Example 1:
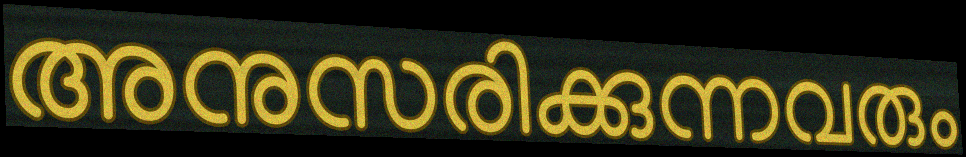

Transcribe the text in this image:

അനുസരിക്കുന്നവരും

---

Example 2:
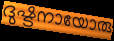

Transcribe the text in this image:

ദുഷ്ടനായോരു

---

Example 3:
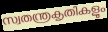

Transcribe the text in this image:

സ്വതന്ത്രകൃതികളും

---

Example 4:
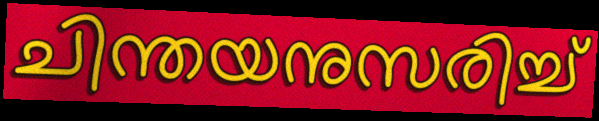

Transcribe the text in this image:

ചിന്തയനുസരിച്ച്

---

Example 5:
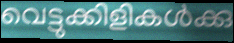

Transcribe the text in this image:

വെട്ടുക്കിളികൾക്കു